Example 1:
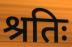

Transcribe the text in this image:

श्रतिः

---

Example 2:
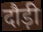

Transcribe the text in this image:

दौड़ी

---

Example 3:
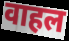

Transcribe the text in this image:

वाहल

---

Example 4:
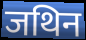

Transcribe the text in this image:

जथिन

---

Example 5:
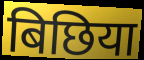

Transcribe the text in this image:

बिछिया